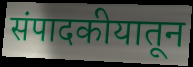
संपादकीयातून